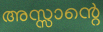
അസ്സാന്റെ